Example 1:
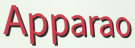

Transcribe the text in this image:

Apparao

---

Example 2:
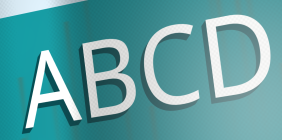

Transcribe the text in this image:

ABCD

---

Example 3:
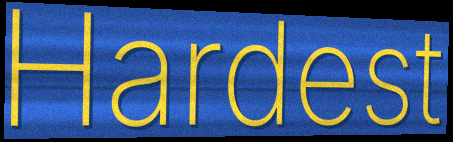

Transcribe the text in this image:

Hardest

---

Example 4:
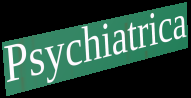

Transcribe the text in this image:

Psychiatrica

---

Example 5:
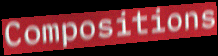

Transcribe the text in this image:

Compositions